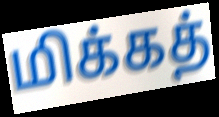
மிக்கத்